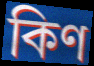
কিণ